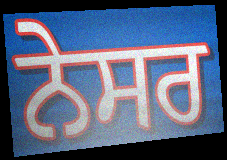
ਨੇਸਰ